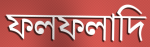
ফলফলাদি